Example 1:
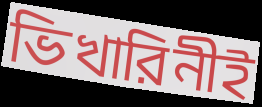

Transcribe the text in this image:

ভিখারিনীই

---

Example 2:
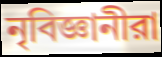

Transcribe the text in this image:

নৃবিজ্ঞানীরা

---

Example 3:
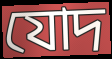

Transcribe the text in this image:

যোদ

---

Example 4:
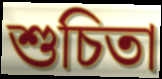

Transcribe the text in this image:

শুচিতা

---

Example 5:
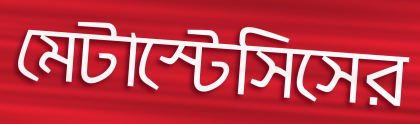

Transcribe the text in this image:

মেটাস্টেসিসের